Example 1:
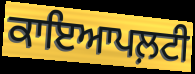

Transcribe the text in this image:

ਕਾਇਆਪਲ਼ਟੀ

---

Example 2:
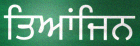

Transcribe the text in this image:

ਤਿਆਂਜਿਨ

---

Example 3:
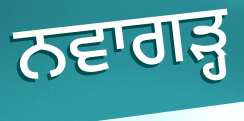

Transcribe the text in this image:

ਨਵਾਗੜ੍ਹ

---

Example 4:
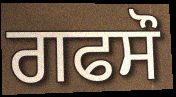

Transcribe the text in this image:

ਗਫਸੌ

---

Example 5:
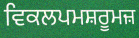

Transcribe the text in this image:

ਵਿਕਲਪਮਸ਼ਰੂਮਜ਼